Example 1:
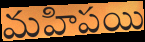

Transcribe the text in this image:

మహిపయి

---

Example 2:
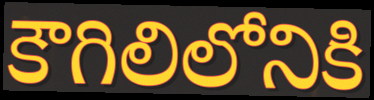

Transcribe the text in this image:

కౌగిలిలోనికి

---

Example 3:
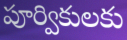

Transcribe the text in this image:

పూర్వికులకు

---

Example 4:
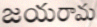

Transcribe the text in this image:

జయరామ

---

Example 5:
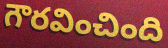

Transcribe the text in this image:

గౌరవించింది